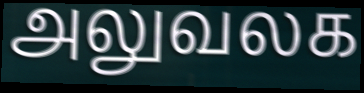
அலுவலக